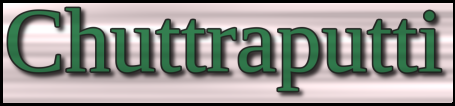
Chuttraputti